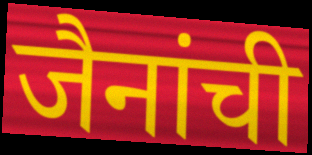
जैनांची